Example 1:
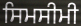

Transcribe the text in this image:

ਸਿਮਸੀਮੀ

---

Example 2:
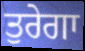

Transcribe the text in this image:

ਤੁਰੇਗਾ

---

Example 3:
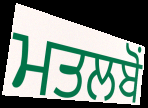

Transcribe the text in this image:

ਮਤਲਬੋਂ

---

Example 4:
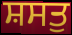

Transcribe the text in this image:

ਸ਼ਸਤੁ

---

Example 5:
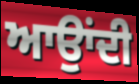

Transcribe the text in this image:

ਆਉਾਂਦੀ